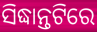
ସିଦ୍ଧାନ୍ତଟିରେ